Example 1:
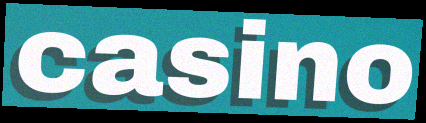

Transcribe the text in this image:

casino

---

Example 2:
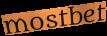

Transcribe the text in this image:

mostbet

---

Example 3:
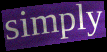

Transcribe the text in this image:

simply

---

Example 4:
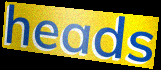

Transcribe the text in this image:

heads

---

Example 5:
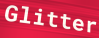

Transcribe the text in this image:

Glitter